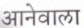
आनेवाला